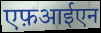
एफ़आईएन